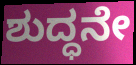
ಶುದ್ಧನೇ